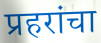
प्रहरांचा